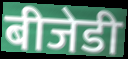
बीजेडी